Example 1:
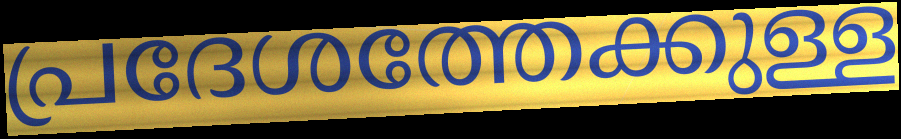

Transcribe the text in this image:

പ്രദേശത്തേക്കുള്ള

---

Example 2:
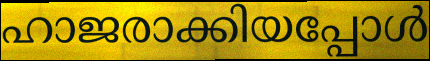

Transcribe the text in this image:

ഹാജരാക്കിയപ്പോൾ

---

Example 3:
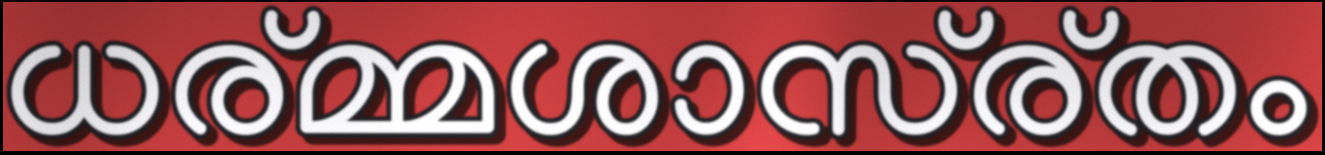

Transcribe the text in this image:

ധര്മ്മശാസ്ര്തം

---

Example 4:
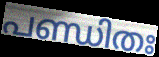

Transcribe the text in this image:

പണ്ഡിതഃ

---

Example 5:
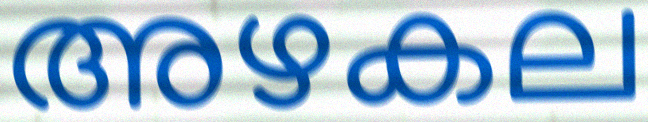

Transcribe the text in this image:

അഴകല